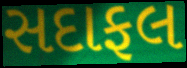
સદાફલ